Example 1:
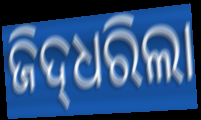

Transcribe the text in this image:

ଜିଦ୍‌ଧରିଲା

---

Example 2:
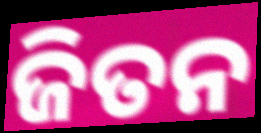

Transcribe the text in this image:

ଜିତନ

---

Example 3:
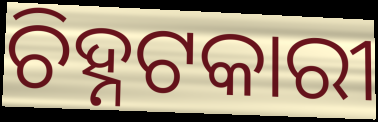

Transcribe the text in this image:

ଚିହ୍ନଟକାରୀ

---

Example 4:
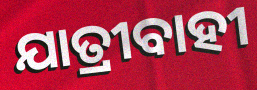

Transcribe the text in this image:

ଯାତ୍ରୀବାହୀ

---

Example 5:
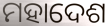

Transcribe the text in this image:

ମହାଦେଶ